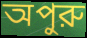
অপুরু